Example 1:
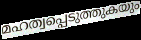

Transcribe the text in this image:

മഹത്വപ്പെടുത്തുകയും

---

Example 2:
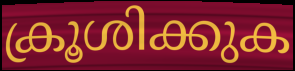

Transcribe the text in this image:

ക്രൂശിക്കുക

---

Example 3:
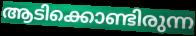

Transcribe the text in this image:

ആടിക്കൊണ്ടിരുന്ന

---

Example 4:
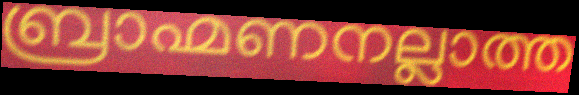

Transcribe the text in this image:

ബ്രാഹ്മണനല്ലാത്ത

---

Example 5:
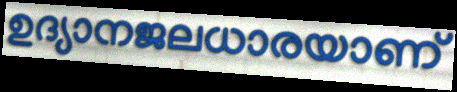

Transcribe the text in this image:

ഉദ്യാനജലധാരയാണ്